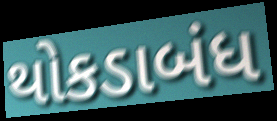
થોકડાબંધ